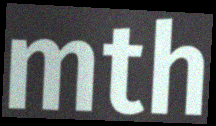
mth